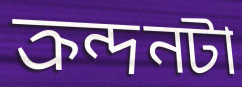
ক্রন্দনটা